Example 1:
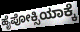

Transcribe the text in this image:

ಹೈಪೋಕ್ಸಿಯಾಕ್ಕೆ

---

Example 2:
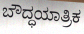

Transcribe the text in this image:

ಬೌದ್ಧಯಾತ್ರಿಕ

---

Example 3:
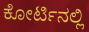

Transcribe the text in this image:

ಕೋರ್ಟಿನಲ್ಲಿ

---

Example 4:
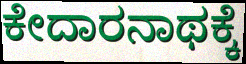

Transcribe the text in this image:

ಕೇದಾರನಾಥಕ್ಕೆ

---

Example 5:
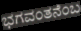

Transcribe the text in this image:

ಭಗವಂತನೆಂಬ